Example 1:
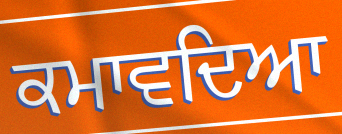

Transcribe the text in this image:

ਕਮਾਵਦਿਆ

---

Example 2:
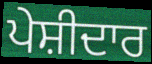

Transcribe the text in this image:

ਪੇਸ਼ੀਦਾਰ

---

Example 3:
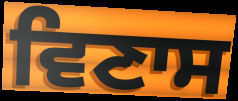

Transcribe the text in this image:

ਵਿਣਾਸ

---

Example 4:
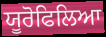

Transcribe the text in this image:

ਯੂਰੋਫਿਲਿਆ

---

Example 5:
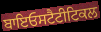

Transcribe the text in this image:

ਬਾਇਓਸਟੈਟੀਟਿਕਲ